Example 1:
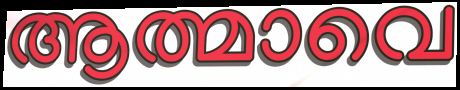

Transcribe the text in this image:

ആത്മാവെ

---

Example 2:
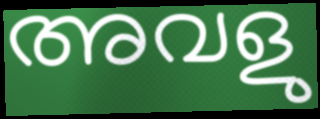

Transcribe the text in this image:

അവളു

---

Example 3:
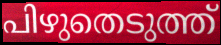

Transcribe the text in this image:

പിഴുതെടുത്ത്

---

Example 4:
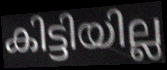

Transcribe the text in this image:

കിട്ടിയില്ല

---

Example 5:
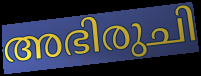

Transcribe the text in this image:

അഭിരുചി